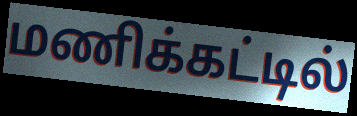
மணிக்கட்டில்